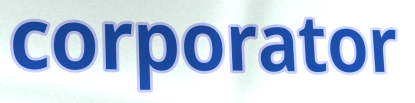
corporator